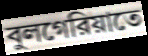
বুলগেরিয়াতে